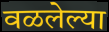
वळलेल्या